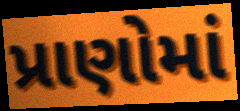
પ્રાણોમાં